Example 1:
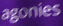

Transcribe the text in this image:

agonies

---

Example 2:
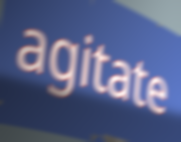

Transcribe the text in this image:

agitate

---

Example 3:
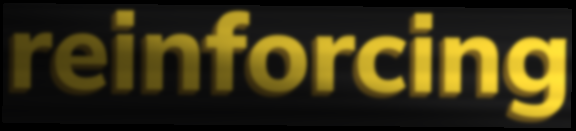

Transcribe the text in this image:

reinforcing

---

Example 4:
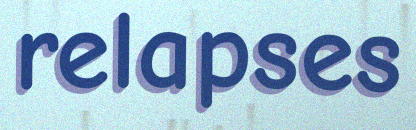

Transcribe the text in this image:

relapses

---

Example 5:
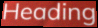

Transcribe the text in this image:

Heading